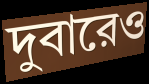
দুবারেও